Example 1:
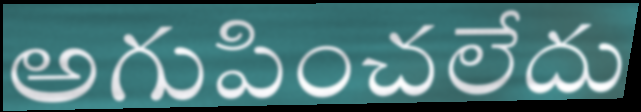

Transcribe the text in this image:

అగుపించలేదు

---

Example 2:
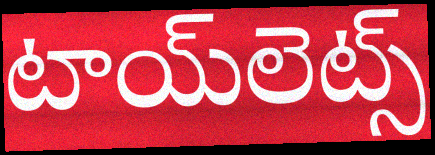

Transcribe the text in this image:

టాయ్‌లెట్స్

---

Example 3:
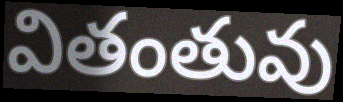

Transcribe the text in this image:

వితంతువు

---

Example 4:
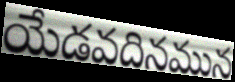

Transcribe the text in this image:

యేడవదినమున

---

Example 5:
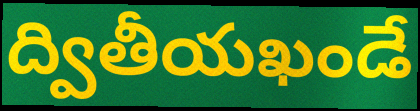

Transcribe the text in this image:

ద్వితీయఖండే